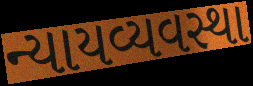
ન્યાયવ્યવસ્થા